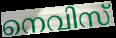
നെവിസ്